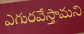
ఎగురవేస్తామని